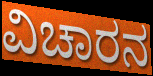
ವಿಚಾರನ